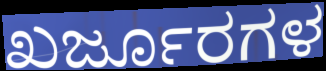
ಖರ್ಜೂರಗಳ